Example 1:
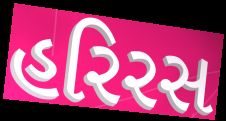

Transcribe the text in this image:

હરિરસ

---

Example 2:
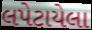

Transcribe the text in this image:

લપેટાયેલા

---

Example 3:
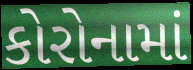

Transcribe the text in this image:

કોરોનામાં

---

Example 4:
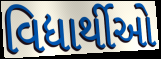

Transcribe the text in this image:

વિદ્યાર્થીઓ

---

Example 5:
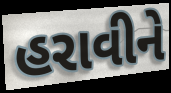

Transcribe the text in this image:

હરાવીને